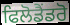
ਫਿਲੋਡੈਂਡਰੋ